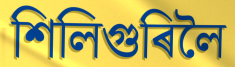
শিলিগুৰিলৈ